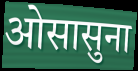
ओसासुना